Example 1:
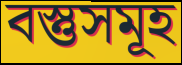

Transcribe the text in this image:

বস্তুসমূহ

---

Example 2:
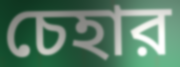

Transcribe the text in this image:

চেহার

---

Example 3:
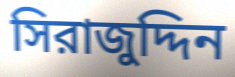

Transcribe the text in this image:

সিরাজুদ্দিন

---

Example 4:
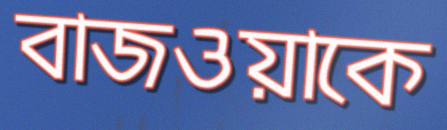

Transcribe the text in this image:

বাজওয়াকে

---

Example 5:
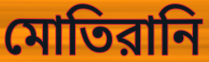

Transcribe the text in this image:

মোতিরানি